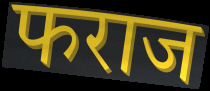
फराज